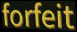
forfeit